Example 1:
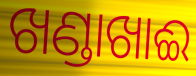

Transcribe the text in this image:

ଖଣ୍ଡାଖାଈ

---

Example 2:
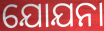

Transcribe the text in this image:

ଯୋଯନା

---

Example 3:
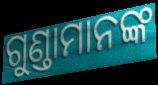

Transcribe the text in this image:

ଗୁଣ୍ଡାମାନଙ୍କ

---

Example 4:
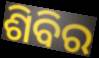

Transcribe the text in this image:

ଶିବିର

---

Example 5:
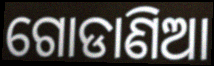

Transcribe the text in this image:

ଗୋଡାଣିଆ